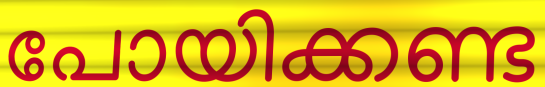
പോയിക്കണ്ട